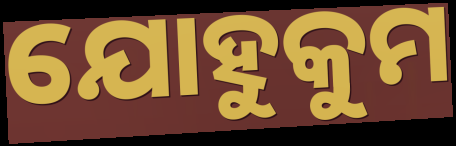
ଯୋହୁକୁମ